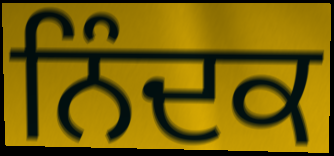
ਨਿੰਦਕ